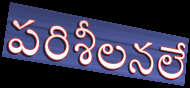
పరిశీలనలే